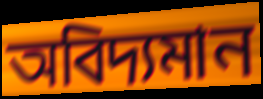
অবিদ্যমান